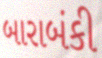
બારાબંકી